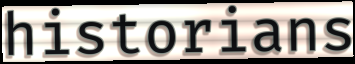
historians